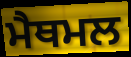
ਮੈਥਮਲ